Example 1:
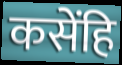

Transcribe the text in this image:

कसेंहि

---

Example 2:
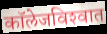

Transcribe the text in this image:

कॉलेजविश्वात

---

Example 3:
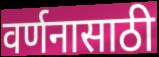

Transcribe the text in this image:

वर्णनासाठी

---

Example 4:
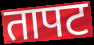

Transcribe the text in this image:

तापट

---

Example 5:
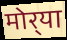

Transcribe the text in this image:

मोर्‍या